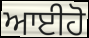
ਆਈਹੋ